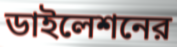
ডাইলেশনের